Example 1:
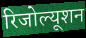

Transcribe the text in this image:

रिजोल्यूशन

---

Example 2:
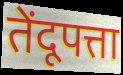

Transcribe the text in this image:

तेंदूपत्ता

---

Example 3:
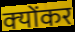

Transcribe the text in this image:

क्‍योंकर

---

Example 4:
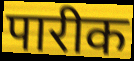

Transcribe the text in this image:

पारीक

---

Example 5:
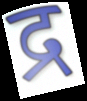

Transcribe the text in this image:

द्र